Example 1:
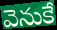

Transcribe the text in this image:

వెనుకే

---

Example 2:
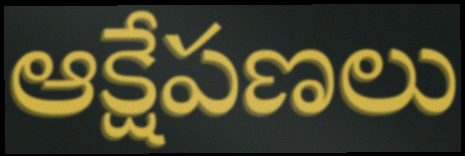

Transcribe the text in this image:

ఆక్షేపణలు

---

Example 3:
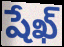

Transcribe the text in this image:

షేఖ్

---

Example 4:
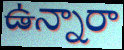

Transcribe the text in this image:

ఉన్నారా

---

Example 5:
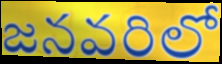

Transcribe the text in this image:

జనవరిలో